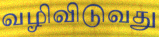
வழிவிடுவது